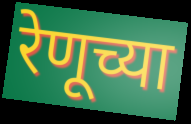
रेणूच्या